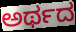
ಅರ್ಥದ